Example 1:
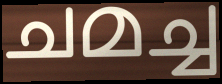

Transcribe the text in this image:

ചമച്ച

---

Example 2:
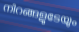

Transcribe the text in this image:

നിറങ്ങളുടേയും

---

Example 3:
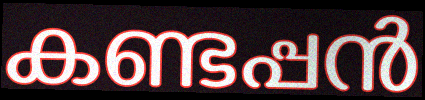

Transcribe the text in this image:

കണ്ടപ്പൻ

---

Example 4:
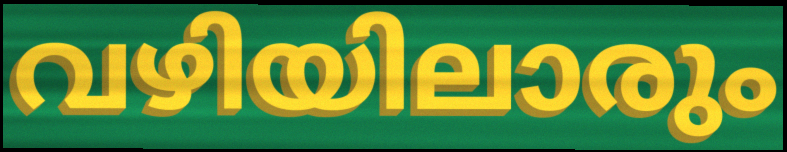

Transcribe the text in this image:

വഴിയിലാരും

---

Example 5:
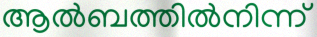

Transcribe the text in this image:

ആൽബത്തിൽനിന്ന്